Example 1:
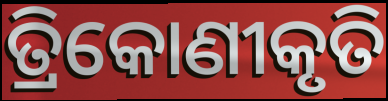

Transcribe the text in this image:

ତ୍ରିକୋଣୀକୃତି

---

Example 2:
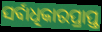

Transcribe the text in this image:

ସର୍ବାଧିକାରପ୍ରାପ୍ତ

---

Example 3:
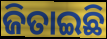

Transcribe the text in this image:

ଜିତାଇଛି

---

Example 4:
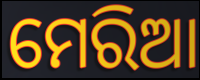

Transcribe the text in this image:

ମେରିଆ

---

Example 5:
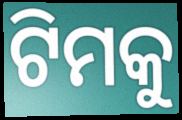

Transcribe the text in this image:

ଟିମକୁ